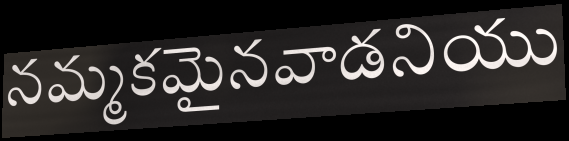
నమ్మకమైనవాడనియు